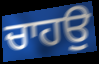
ਚਾਹਉ